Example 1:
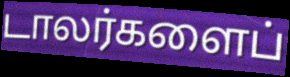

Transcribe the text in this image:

டாலர்களைப்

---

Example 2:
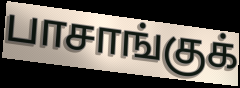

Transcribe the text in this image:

பாசாங்குக்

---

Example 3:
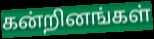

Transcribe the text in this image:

கன்றினங்கள்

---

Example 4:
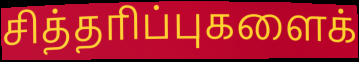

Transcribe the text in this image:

சித்தரிப்புகளைக்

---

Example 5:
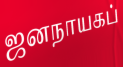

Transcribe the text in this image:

ஜனநாயகப்